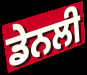
ਡੇਨਲੀ